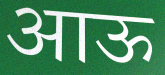
आऊ